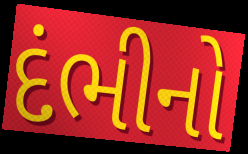
દંભીનો